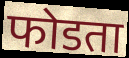
फोडता